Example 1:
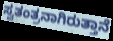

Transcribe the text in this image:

ಸ್ವತಂತ್ರನಾಗಿರುತ್ತಾನೆ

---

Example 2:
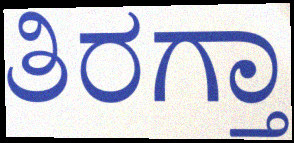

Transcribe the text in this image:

ತಿರಗ್ತಾ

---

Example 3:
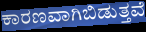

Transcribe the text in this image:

ಕಾರಣವಾಗಿಬಿಡುತ್ತವೆ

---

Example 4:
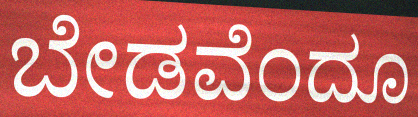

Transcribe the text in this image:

ಬೇಡವೆಂದೂ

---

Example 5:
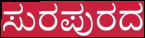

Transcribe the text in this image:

ಸುರಪುರದ